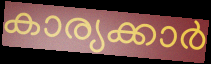
കാര്യക്കാർ